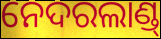
ନେଦରଲାଣ୍ଡ୍